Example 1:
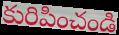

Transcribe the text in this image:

కురిపించండి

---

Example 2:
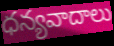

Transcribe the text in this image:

ధన్యవాదాలు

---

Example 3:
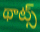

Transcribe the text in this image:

థాట్స్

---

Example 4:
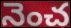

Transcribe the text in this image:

నెంచ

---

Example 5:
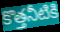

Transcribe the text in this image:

కొత్తనీటికి